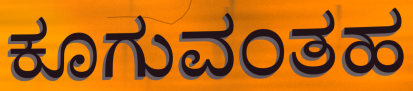
ಕೂಗುವಂತಹ